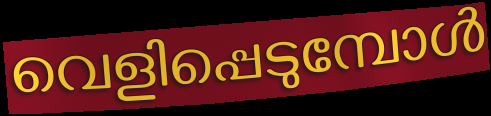
വെളിപ്പെടുമ്പോൾ